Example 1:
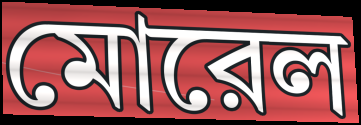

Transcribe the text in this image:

মোরেল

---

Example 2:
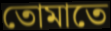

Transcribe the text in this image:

তোমাতে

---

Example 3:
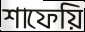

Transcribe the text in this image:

শাফেয়ি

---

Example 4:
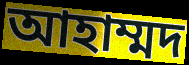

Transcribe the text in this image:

আহাম্মদ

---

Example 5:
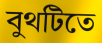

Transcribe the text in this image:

বুথটিতে